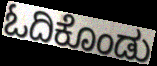
ಓದಿಕೊಂಡು